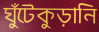
ঘুঁটেকুড়ানি